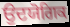
ਉਦਯੋਗਿਕ